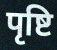
पृष्टि